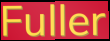
Fuller